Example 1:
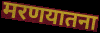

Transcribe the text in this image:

मरणयातना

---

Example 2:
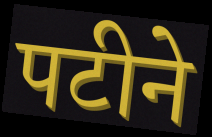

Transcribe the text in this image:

पटीने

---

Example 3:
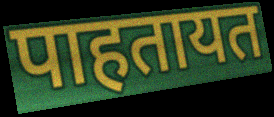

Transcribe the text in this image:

पाहतायत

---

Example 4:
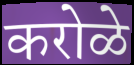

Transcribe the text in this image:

करोळे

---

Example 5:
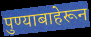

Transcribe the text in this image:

पुण्याबाहेरून